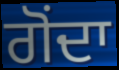
ਗੋਂਦਾ